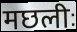
मछलीः